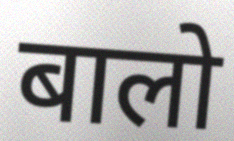
बालो